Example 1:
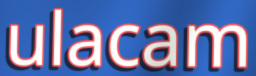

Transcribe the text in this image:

ulacam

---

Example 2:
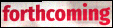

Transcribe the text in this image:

forthcoming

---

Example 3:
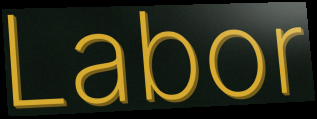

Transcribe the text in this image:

Labor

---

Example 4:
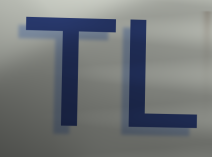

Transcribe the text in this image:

TL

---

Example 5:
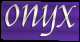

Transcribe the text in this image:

onyx